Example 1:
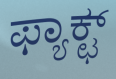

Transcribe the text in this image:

ಫ್ಯಾಕ್ಟ್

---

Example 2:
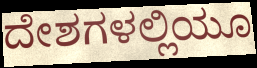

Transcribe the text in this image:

ದೇಶಗಳಲ್ಲಿಯೂ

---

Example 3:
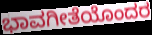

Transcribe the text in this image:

ಭಾವಗೀತೆಯೊಂದರ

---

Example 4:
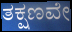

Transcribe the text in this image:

ತಕ್ಷಣವೇ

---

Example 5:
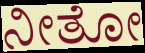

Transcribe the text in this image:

ನೀತೋ